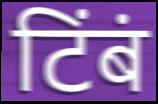
टिंबं